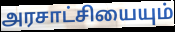
அரசாட்சியையும்